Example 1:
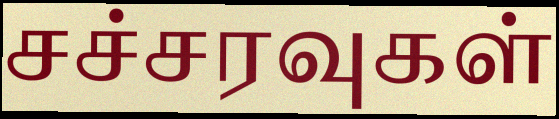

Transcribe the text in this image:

சச்சரவுகள்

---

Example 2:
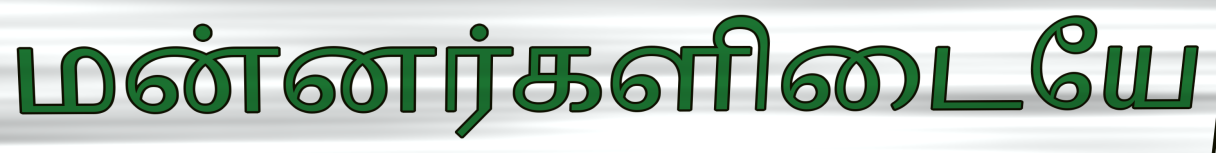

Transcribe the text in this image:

மன்னர்களிடையே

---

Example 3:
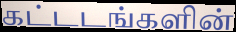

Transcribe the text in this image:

கட்டடங்களின்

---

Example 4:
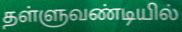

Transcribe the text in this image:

தள்ளுவண்டியில்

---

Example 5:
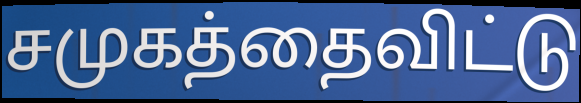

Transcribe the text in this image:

சமுகத்தைவிட்டு